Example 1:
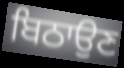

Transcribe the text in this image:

ਬਿਠਾਉਣ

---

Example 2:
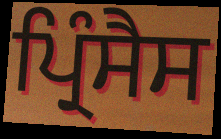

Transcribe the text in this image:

ਪ੍ਰਿੰਸੈਸ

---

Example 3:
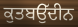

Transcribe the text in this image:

ਕੁਤਬਉੱਦੀਨ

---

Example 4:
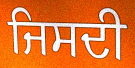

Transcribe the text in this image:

ਜਿਸਦੀ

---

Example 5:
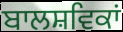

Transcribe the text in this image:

ਬਾਲਸ਼ਵਿਕਾਂ